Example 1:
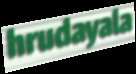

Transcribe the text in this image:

hrudayala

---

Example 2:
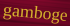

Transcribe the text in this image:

gamboge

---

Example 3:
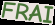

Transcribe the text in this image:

FRAI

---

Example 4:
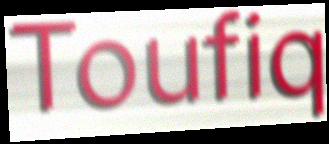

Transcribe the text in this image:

Toufiq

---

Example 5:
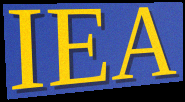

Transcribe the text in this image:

IEA